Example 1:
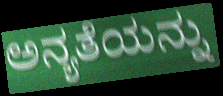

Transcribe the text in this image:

ಅನ್ಯತೆಯನ್ನು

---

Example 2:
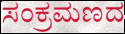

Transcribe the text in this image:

ಸಂಕ್ರಮಣದ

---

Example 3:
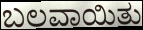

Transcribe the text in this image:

ಬಲವಾಯಿತು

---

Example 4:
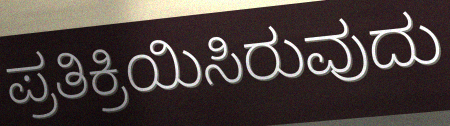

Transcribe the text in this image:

ಪ್ರತಿಕ್ರಿಯಿಸಿರುವುದು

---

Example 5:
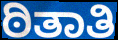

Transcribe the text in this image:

ಠಿತಾತಿ